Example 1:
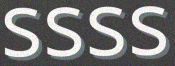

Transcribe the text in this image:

ssss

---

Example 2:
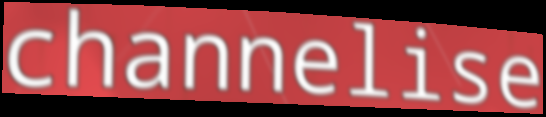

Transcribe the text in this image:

channelise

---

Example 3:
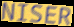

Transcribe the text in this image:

NISER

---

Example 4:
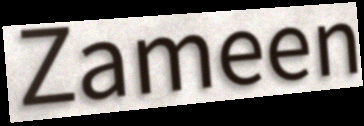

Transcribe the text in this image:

Zameen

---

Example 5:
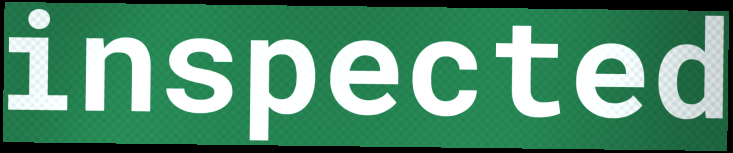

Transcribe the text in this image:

inspected